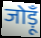
जोड़ूँ